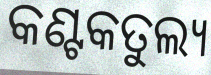
କଣ୍ଟକତୁଲ୍ୟ